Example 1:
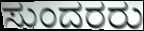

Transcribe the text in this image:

ಸುಂದರರು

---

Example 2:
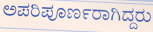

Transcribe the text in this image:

ಅಪರಿಪೂರ್ಣರಾಗಿದ್ದರು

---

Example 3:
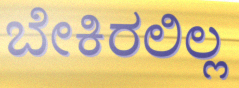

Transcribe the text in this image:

ಬೇಕಿರಲಿಲ್ಲ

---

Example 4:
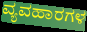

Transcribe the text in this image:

ವ್ಯವಹಾರಗಳ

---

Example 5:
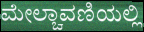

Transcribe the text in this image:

ಮೇಲ್ಚಾವಣಿಯಲ್ಲಿ